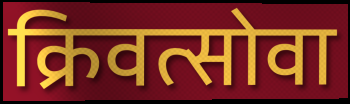
क्रिवत्सोवा